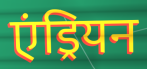
एंड्रियन